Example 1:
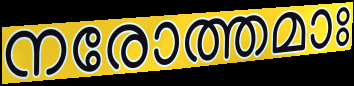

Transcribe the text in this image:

നരോത്തമാഃ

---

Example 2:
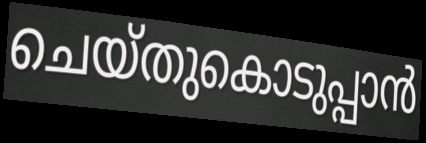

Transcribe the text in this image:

ചെയ്തുകൊടുപ്പാൻ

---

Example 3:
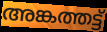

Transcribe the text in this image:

അങ്കത്തട്ട്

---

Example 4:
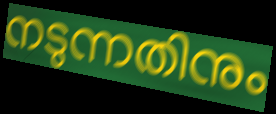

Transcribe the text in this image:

നടുന്നതിനും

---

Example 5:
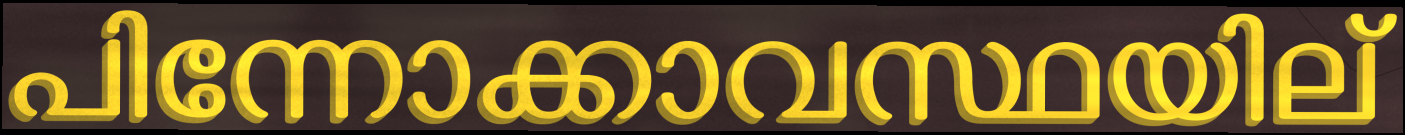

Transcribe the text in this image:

പിന്നോക്കാവസ്ഥയില്